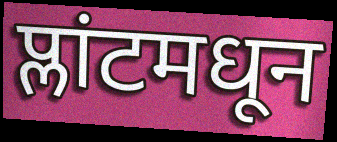
प्लांटमधून